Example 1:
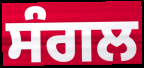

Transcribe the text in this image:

ਸੰਗਲ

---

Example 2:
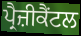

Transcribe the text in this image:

ਪ੍ਰੈਜ਼ੀਕੈਂਟਲ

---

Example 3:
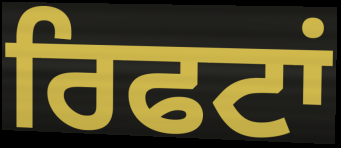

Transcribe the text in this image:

ਰਿਫਟਾਂ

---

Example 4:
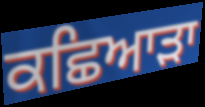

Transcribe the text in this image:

ਕਛਿਆੜਾ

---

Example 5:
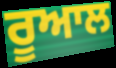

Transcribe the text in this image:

ਰੂਆਲ